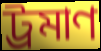
ট্রমাণ